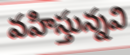
వహిస్తున్నవి